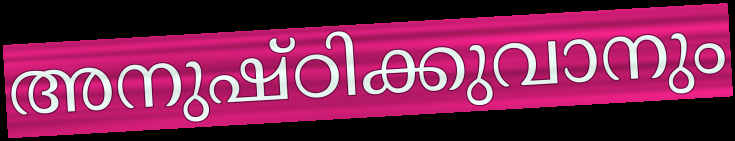
അനുഷ്ഠിക്കുവാനും